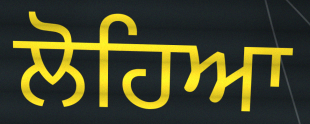
ਲੋਹਿਆ